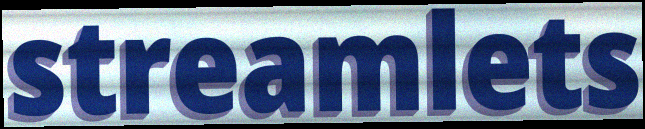
streamlets